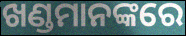
ଖଣ୍ଡମାନଙ୍କରେ